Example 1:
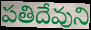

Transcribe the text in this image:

పతిదేవుని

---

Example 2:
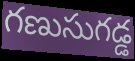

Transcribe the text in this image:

గణుసుగడ్డ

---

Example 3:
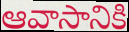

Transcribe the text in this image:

ఆవాసానికి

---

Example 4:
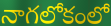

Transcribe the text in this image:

నాగలోకంలో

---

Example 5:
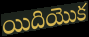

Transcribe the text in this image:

యిదియొక